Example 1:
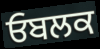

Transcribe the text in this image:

ਓਬਲਕ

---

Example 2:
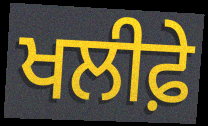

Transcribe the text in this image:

ਖਲੀਫ਼ੇ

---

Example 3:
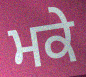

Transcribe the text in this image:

ਮਕੇ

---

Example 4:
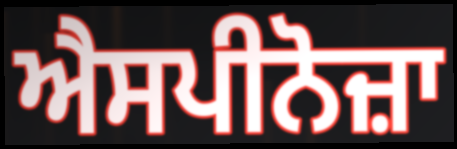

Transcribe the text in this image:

ਐਸਪੀਨੋਜ਼ਾ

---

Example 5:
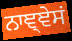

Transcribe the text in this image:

ਨਾਞ੍ਞੇਸਂ